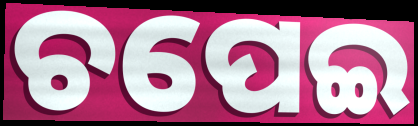
ଚପେଇ